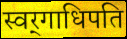
स्वर्गाधिपति